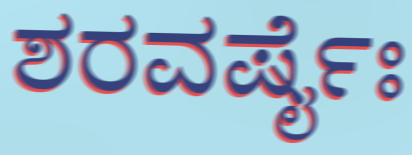
ಶರವರ್ಷೈಃ